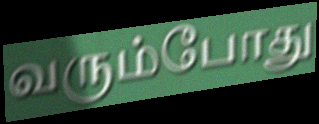
வரும்போது